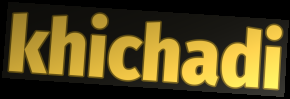
khichadi